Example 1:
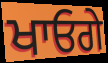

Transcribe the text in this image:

ਖਾਓਗੇ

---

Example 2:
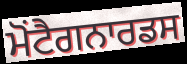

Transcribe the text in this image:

ਮੋਂਟੈਗਨਾਰਡਸ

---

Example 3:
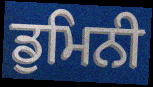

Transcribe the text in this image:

ਡੁਮਿਨੀ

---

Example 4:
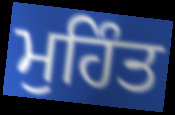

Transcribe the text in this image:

ਮੁਹਿੰਤ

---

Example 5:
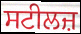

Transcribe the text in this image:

ਸਟੀਲਜ਼